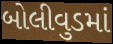
બોલીવુડમાં